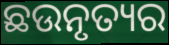
ଛଉନୃତ୍ୟର